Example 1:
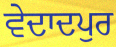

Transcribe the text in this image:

ਵੇਦਾਦਪੁਰ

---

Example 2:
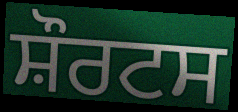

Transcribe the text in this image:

ਸ਼ੌਰਟਸ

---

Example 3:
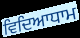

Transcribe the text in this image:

ਵਿਦਿਆਧਾਮ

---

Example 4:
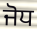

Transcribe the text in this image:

ਜੋਧ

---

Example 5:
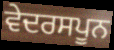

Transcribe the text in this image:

ਵੇਦਰਸਪੂਨ